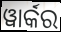
ୱାର୍କର